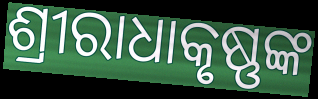
ଶ୍ରୀରାଧାକୃଷ୍ଣଙ୍କ